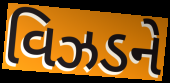
વિઝડને